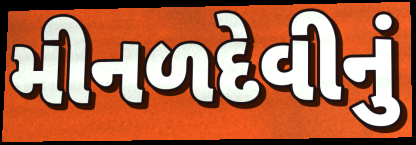
મીનળદેવીનું